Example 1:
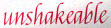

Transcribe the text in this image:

unshakeable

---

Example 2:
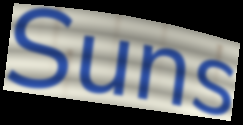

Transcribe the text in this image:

Suns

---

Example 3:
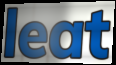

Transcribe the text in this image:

leat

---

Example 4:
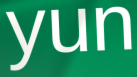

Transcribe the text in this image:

yun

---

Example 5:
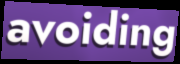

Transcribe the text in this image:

avoiding